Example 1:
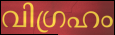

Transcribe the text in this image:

വിഗ്രഹം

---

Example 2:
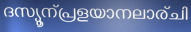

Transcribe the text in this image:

ദസ്യൂന്പ്രളയാനലാര്ചി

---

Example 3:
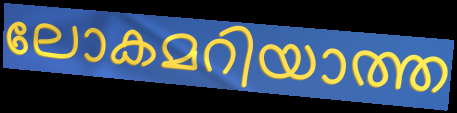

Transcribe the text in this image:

ലോകമറിയാത്ത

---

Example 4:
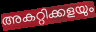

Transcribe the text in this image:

അകറ്റിക്കളയും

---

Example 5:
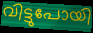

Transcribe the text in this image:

വിട്ടുപോയി